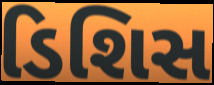
ડિશિસ